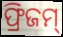
ଫ୍ରିଜମ୍